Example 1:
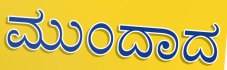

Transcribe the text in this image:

ಮುಂದಾದ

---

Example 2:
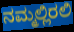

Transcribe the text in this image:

ನಮ್ಮಲ್ಲಿರಲಿ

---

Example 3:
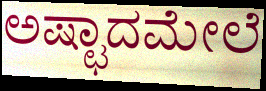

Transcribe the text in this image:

ಅಷ್ಟಾದಮೇಲೆ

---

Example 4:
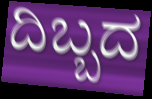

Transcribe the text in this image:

ದಿಬ್ಬದ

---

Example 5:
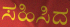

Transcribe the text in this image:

ಸಹಿಸಿದ